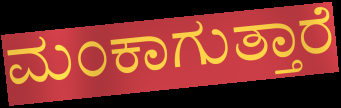
ಮಂಕಾಗುತ್ತಾರೆ